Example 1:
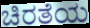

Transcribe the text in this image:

ಚಿರತೆಯ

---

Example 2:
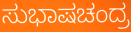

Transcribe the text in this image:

ಸುಭಾಷಚಂದ್ರ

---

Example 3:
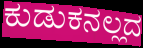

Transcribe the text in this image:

ಕುಡುಕನಲ್ಲದ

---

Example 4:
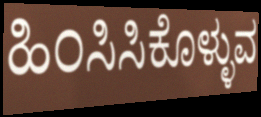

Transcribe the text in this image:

ಹಿಂಸಿಸಿಕೊಳ್ಳುವ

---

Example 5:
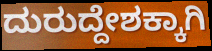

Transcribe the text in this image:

ದುರುದ್ದೇಶಕ್ಕಾಗಿ